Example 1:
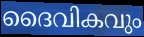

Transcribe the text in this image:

ദൈവികവും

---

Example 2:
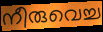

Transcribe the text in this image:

നീരുവെച്ച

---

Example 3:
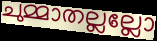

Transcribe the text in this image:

ചുമ്മാതല്ലല്ലോ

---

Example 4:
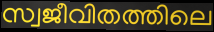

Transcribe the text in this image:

സ്വജീവിതത്തിലെ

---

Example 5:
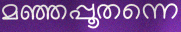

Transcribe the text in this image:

മഞ്ഞപ്പൂതന്നെ